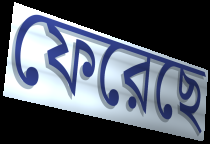
ফেরেছে